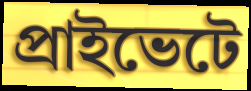
প্রাইভেটে